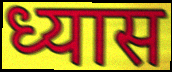
ध्यास